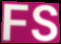
FS